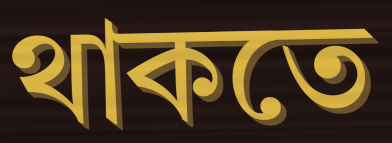
থাকতে